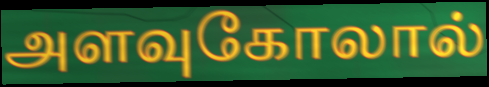
அளவுகோலால்